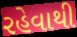
રહેવાથી